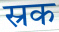
स्रक